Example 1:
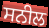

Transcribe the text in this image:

ਸਨੀਲ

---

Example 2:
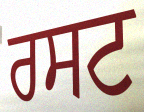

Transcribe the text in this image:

ਰਸਟ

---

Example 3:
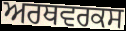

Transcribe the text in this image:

ਅਰਥਵਰਕਸ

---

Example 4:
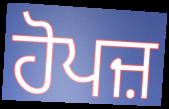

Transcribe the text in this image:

ਹੋਪਜ਼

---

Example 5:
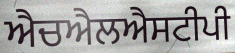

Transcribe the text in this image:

ਐਚਐਲਐਸਟੀਪੀ